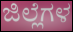
ಜಿಲ್ಲೆಗಳ